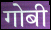
गोबी